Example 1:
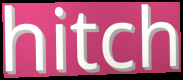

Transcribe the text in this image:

hitch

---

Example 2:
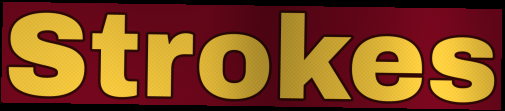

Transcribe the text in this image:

Strokes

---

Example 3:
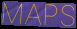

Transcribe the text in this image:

MAPS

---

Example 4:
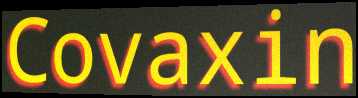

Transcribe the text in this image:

Covaxin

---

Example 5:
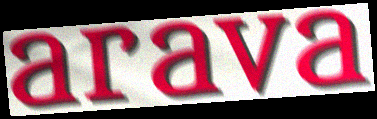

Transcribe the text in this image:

arava